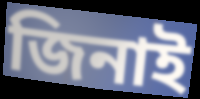
জিনাই